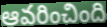
ఆవరించింది